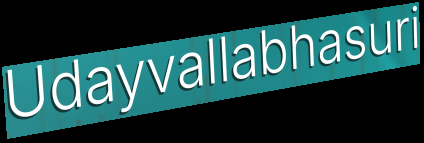
Udayvallabhasuri